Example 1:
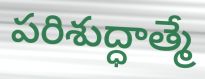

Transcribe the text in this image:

పరిశుద్ధాత్మే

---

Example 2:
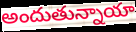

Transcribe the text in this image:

అందుతున్నాయా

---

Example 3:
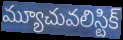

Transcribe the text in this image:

మ్యూచువలిస్టిక్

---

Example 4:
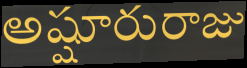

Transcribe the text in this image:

అష్షూరురాజు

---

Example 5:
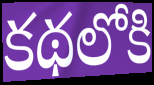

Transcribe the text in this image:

కథలోకి